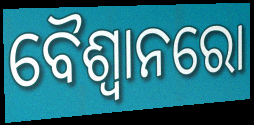
ବୈଶ୍ୱାନରୋ